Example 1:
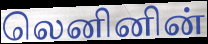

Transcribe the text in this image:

லெனினின்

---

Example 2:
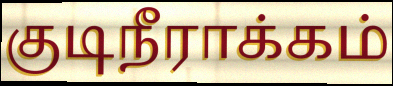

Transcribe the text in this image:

குடிநீராக்கம்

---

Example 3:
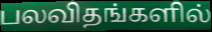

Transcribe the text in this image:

பலவிதங்களில்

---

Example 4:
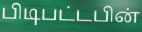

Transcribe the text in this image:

பிடிபட்டபின்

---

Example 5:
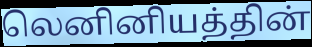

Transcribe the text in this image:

லெனினியத்தின்